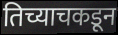
तिच्याचकडून